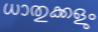
ധാതുക്കളും